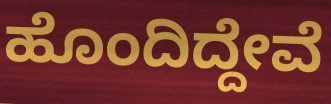
ಹೊಂದಿದ್ದೇವೆ